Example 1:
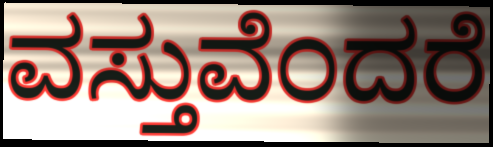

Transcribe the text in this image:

ವಸ್ತುವೆಂದರೆ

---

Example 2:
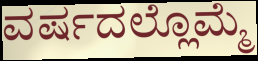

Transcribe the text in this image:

ವರ್ಷದಲ್ಲೊಮ್ಮೆ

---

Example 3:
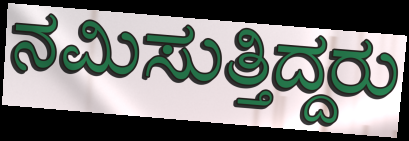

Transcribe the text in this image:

ನಮಿಸುತ್ತಿದ್ದರು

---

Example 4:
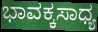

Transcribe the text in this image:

ಭಾವಕ್ಕಸಾಧ್ಯ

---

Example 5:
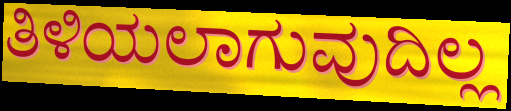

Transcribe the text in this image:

ತಿಳಿಯಲಾಗುವುದಿಲ್ಲ